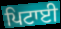
ਪਿਟਾਈ